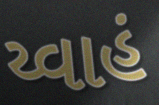
ય્વાહં